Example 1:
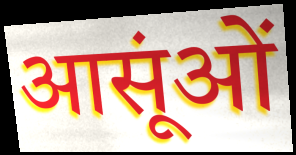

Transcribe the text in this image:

आसूंओं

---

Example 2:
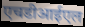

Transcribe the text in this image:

एचडीआईएल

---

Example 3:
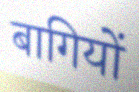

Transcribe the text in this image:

बागियों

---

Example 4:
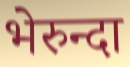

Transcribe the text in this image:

भेरुन्दा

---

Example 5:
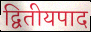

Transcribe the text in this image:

द्वितीयपाद